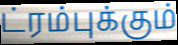
ட்ரம்புக்கும்